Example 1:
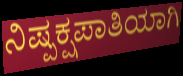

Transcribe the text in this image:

ನಿಷ್ಪಕ್ಷಪಾತಿಯಾಗಿ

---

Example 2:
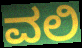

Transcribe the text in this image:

ವಲಿ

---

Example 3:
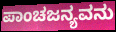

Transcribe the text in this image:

ಪಾಂಚಜನ್ಯವನು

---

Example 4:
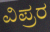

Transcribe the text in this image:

ವಿಪ್ರರ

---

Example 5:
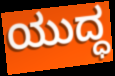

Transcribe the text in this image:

ಯುದ್ಧ